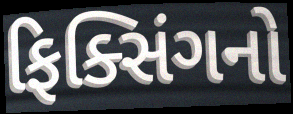
ફિક્સિંગનો